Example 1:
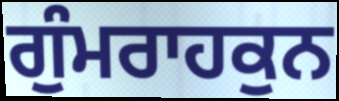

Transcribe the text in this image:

ਗੁੰਮਰਾਹਕੁਨ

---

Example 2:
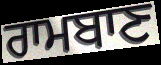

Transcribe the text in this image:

ਰਾਮਬਾਣ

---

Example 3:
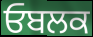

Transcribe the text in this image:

ਓਬਲਕ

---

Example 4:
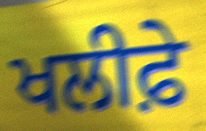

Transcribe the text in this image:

ਖਲੀਫ਼ੇ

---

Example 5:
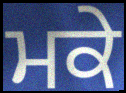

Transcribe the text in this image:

ਮਕੇ